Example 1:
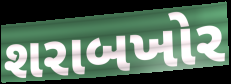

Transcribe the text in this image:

શરાબખોર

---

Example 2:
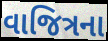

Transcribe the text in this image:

વાજિત્રના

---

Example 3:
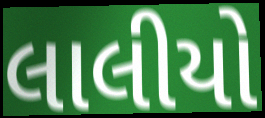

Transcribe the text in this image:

લાલીયો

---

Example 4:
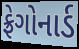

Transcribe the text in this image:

ફ્રેગોનાર્ડ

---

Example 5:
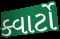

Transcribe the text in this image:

ક્વાર્ટો